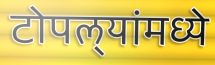
टोपल्यांमध्ये